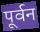
पूर्वन